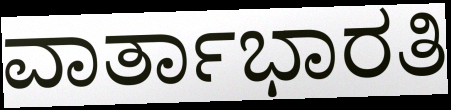
ವಾರ್ತಾಭಾರತಿ